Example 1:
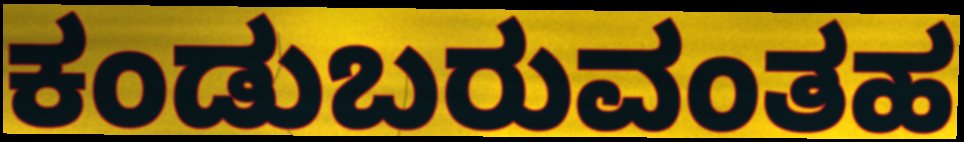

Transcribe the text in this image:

ಕಂಡುಬರುವಂತಹ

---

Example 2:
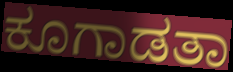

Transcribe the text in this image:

ಕೂಗಾಡತಾ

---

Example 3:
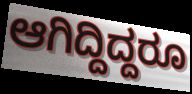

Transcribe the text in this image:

ಆಗಿದ್ದಿದ್ದರೂ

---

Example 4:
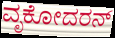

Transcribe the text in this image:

ವೃಕೋದರನ್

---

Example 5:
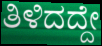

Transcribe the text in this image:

ತಿಳಿದದ್ದೇ